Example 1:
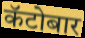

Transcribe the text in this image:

कॅटोबार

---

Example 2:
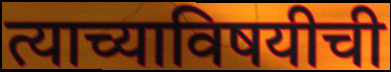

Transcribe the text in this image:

त्याच्याविषयीची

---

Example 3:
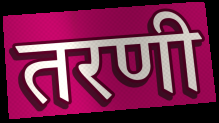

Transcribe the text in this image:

तरणी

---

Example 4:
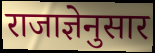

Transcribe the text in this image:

राजाज्ञेनुसार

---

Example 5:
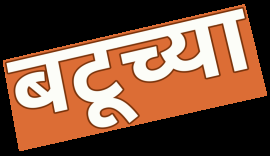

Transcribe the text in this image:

बटूच्या